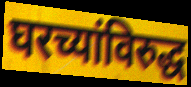
घरच्यांविरुद्ध